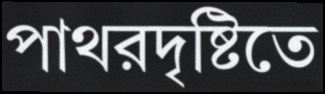
পাথরদৃষ্টিতে